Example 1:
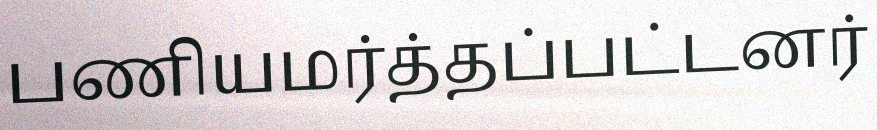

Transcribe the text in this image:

பணியமர்த்தப்பட்டனர்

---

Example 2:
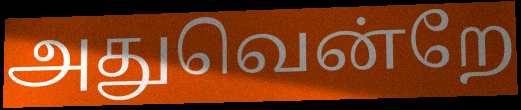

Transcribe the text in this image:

அதுவென்றே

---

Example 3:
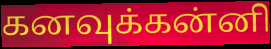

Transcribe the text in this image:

கனவுக்கன்னி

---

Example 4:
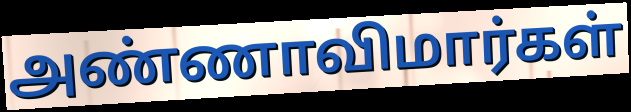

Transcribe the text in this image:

அண்ணாவிமார்கள்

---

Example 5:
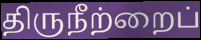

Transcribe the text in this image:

திருநீற்றைப்